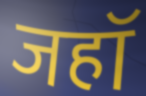
जहॉ